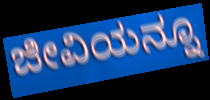
ಜೀವಿಯನ್ನೂ